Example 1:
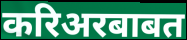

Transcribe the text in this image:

करिअरबाबत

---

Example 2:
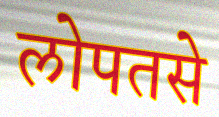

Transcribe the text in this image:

लोपतसे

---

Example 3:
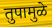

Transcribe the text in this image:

तुपामुळे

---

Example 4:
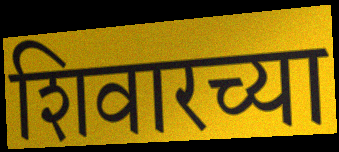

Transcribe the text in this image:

शिवारच्या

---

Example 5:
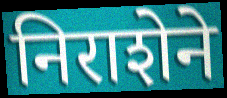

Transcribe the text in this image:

निराशेने